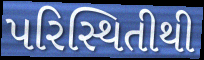
પરિસ્થિતીથી